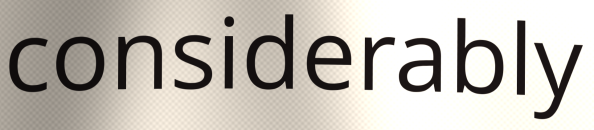
considerably